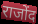
राजोंद